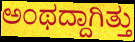
ಅಂಥದ್ದಾಗಿತ್ತು